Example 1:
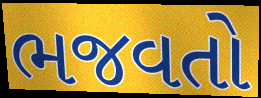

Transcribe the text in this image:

ભજવતો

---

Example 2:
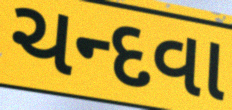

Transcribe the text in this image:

ચન્દવા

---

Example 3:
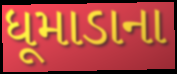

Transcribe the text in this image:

ધૂમાડાના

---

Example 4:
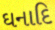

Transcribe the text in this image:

ઘનાદિ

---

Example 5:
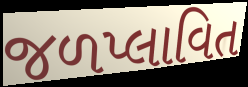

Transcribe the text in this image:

જળપ્લાવિત